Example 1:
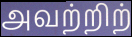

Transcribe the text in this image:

அவற்றிற்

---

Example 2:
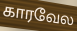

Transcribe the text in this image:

காரவேல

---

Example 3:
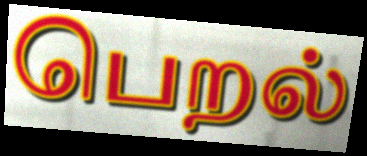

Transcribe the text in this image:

பெறல்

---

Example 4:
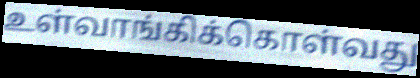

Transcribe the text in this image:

உள்வாங்கிக்கொள்வது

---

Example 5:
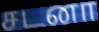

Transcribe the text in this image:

சடனா